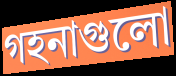
গহনাগুলো